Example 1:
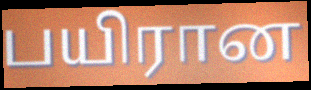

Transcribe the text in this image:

பயிரான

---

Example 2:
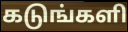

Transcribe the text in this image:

கடுங்களி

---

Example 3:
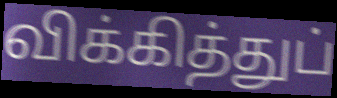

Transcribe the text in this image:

விக்கித்துப்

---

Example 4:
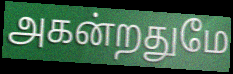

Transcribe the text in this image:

அகன்றதுமே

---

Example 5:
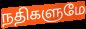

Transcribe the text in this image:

நதிகளுமே